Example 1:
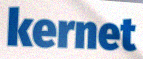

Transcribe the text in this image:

kernet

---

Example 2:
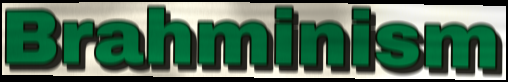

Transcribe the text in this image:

Brahminism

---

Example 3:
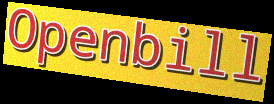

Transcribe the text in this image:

Openbill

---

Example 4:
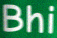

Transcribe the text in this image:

Bhi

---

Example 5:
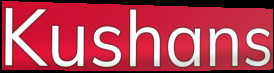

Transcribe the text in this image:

Kushans